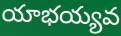
యాభయ్యవ